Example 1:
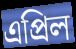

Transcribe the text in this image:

এপ্ৰিল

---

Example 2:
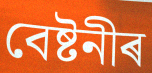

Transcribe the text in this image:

বেষ্টনীৰ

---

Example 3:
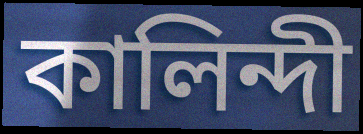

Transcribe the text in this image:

কালিন্দী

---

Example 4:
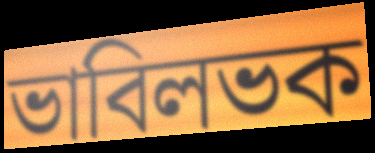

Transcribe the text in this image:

ভাবিলভক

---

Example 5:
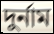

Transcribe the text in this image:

দুৰ্নাম